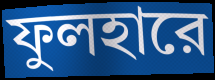
ফুলহারে